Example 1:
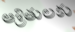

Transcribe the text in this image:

ఆశ్రితులకు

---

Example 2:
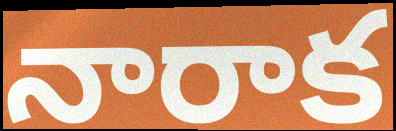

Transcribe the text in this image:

నారాక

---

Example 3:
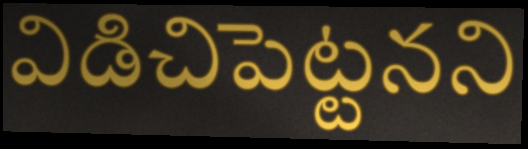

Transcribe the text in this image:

విడిచిపెట్టనని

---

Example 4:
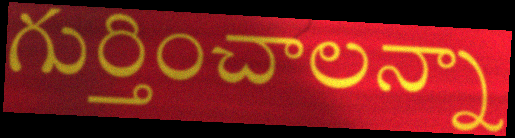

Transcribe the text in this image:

గుర్తించాలన్నా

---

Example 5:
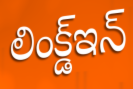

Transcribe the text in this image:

లింక్డ్ఇన్